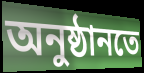
অনুষ্ঠানতে